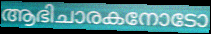
ആഭിചാരകനോടോ